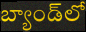
బ్యాండ్‌లో